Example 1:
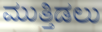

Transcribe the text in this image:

ಮುತ್ತಿಡಲು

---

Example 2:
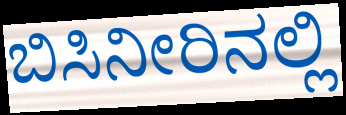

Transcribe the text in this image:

ಬಿಸಿನೀರಿನಲ್ಲಿ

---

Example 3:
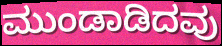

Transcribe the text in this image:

ಮುಂಡಾಡಿದವು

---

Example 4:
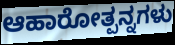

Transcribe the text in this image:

ಆಹಾರೋತ್ಪನ್ನಗಳು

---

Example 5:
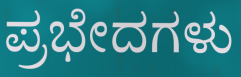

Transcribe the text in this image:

ಪ್ರಭೇದಗಳು